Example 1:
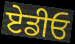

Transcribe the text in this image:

ਏਡੀਓ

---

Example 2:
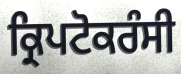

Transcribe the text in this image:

ਕ੍ਰਿਪਟੋਕਰੰਸੀ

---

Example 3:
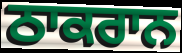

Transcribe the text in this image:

ਠਾਕਰਾਨ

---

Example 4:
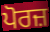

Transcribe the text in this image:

ਪੋਰਜ਼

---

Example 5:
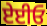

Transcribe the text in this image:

ਏਈਓ